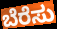
ಬೆರೆಸು